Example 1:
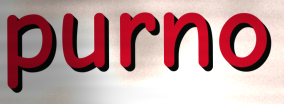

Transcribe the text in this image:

purno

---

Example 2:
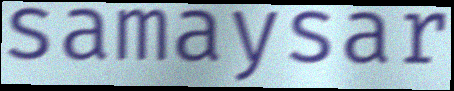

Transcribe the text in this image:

samaysar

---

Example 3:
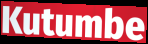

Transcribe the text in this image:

Kutumbe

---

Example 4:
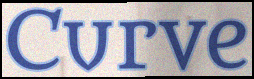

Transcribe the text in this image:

Curve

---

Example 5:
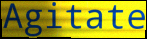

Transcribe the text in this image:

Agitate